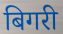
बिगरी